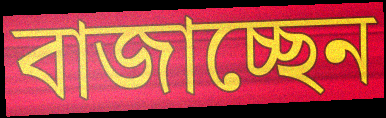
বাজাচ্ছেন